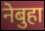
नेबुहा